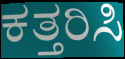
ಕತ್ತರಿಸಿ